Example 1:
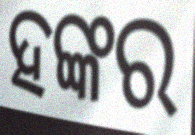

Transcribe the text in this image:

ହଙ୍କର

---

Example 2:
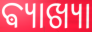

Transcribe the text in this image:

ଵ୍ୟାଖ୍ୟା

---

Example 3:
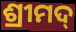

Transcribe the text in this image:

ଶ୍ରୀମଦ୍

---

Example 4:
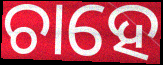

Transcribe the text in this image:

ଚାହେ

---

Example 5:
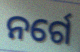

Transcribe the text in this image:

ନର୍ଗେ